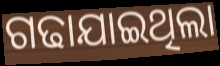
ଗଢାଯାଇଥିଲା